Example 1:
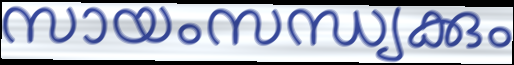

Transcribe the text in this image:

സായംസന്ധ്യക്കും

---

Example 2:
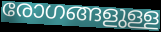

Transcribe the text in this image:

രോഗങ്ങളുള്ള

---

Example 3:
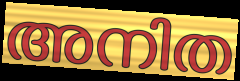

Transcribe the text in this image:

അനിത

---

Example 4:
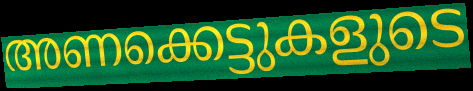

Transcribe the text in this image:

അണക്കെട്ടുകളുടെ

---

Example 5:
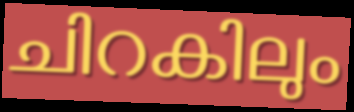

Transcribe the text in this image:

ചിറകിലും